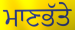
ਮਾਣਭੱਤੇ